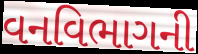
વનવિભાગની